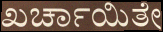
ಖರ್ಚಾಯಿತೇ